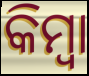
କିମ୍ଵା